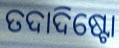
ତଦାଦିଷ୍ଟୋ